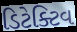
ડિટેક્ટિવ